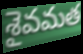
శైవమత